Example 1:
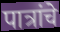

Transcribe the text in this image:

पात्रांचे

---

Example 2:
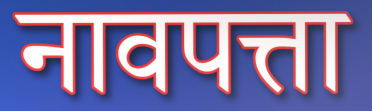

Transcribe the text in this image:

नावपत्ता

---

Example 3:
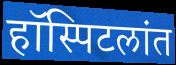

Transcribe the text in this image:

हॉस्पिटलांत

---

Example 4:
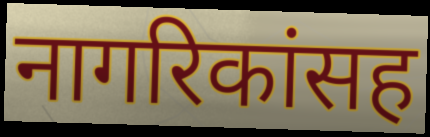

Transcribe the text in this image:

नागरिकांसह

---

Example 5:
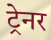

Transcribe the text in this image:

ट्रेनर